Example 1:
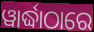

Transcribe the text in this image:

ୱାର୍ଦ୍ଧାଠାରେ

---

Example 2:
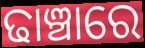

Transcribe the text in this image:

ଢାଞ୍ଚାରେ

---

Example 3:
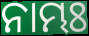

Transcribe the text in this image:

ନାମ୍ଭଃ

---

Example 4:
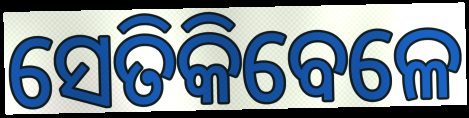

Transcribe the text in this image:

ସେତିକିବେଳେ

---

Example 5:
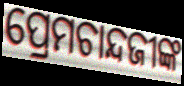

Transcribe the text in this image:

ପ୍ରେମଚାନ୍ଦଜୀଙ୍କ